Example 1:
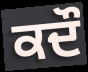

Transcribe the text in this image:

ਕਦੌ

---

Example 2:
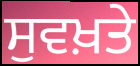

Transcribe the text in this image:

ਸੁਵਖ਼ਤੇ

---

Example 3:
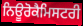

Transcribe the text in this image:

ਨਿਊਰੋਕੈਮਿਸਟਰੀ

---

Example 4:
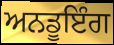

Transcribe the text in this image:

ਅਨਡੂਇੰਗ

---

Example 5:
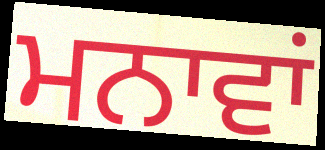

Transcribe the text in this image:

ਮਨਾਵਾਂ